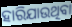
ହାରିଯାଉଥିବା